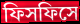
ফিসফিসে